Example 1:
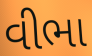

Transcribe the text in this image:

વીભા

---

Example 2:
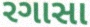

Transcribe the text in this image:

રગાસા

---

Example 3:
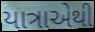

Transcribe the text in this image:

યાત્રાએથી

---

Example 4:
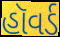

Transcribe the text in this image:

હૉવર્ડ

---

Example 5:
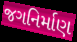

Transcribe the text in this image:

જગનિર્માણ